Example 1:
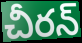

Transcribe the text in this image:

చీరన్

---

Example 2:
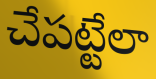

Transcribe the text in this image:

చేపట్టేలా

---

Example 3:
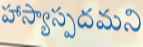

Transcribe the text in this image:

హాస్యాస్పదమని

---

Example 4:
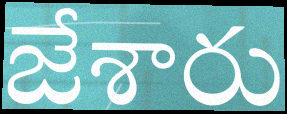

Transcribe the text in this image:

జేశారు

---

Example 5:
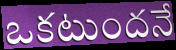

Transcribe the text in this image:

ఒకటుందనే